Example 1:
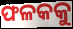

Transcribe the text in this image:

ଫଳକକୁ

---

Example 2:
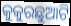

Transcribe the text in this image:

କୁକୁରଛୁଆଟି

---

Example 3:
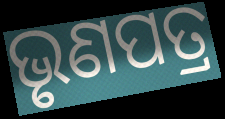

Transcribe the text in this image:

ଭୃଣପତ୍ର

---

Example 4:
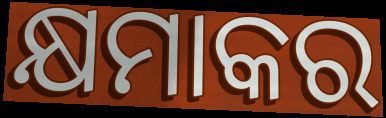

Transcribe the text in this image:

କ୍ଷମାକର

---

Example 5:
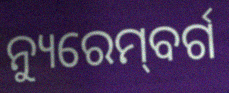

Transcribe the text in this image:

ନ୍ୟୁରେମ୍‌ବର୍ଗ